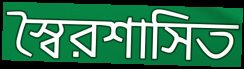
স্বৈরশাসিত